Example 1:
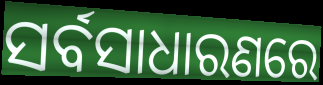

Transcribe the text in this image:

ସର୍ବସାଧାରଣରେ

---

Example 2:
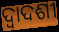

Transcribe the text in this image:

ଦ୍ବାଦଶୀ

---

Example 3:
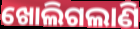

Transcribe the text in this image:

ଖୋଲିଗଲାଣି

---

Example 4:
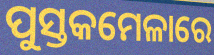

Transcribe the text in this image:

ପୁସ୍ତକମେଳାରେ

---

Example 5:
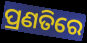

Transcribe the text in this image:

ପ୍ରଣତିରେ